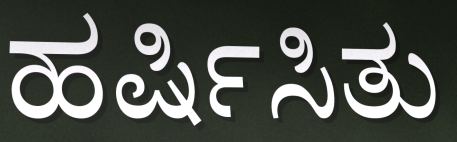
ಹರ್ಷಿಸಿತು